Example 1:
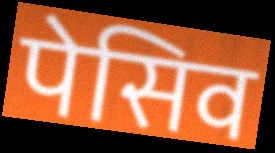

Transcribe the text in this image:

पेसिव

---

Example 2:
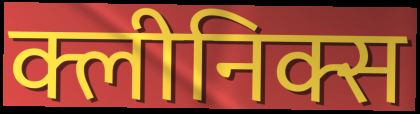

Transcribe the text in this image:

क्लीनिक्स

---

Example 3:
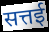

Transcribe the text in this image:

सत्तई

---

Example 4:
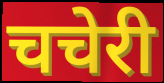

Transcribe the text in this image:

चचेरी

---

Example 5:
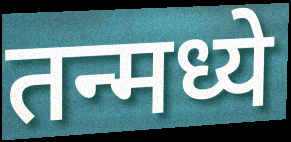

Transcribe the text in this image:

तन्मध्ये